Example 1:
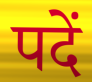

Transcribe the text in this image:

पदें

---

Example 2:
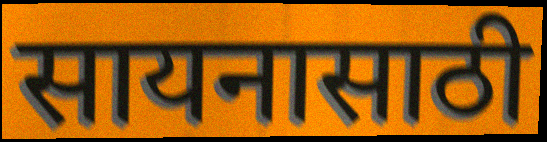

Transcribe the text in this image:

सायनासाठी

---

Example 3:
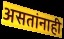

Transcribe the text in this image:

असतांनाही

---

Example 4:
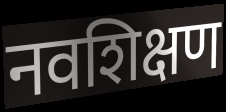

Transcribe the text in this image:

नवशिक्षण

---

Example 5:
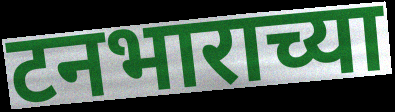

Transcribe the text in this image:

टनभाराच्या